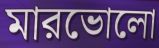
মারভোলো